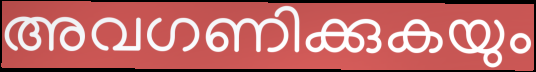
അവഗണിക്കുകയും